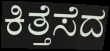
ಕಿತ್ತೆಸೆದ